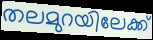
തലമുറയിലേക്ക്